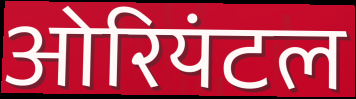
ओरियंटल